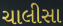
ચાલીસા